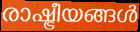
രാഷ്ട്രീയങ്ങൾ